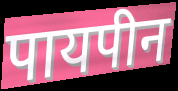
पायपीन